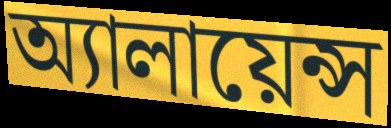
অ্যালায়েন্স